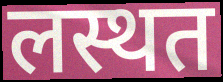
लस्थत